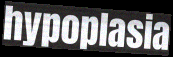
hypoplasia